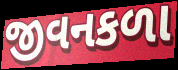
જીવનકળા